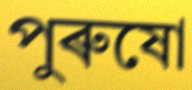
পুৰুষো